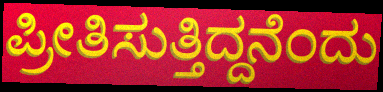
ಪ್ರೀತಿಸುತ್ತಿದ್ದನೆಂದು